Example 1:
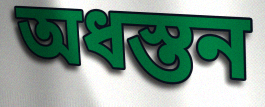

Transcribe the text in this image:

অধস্তন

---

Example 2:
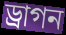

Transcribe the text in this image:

ড্রাগন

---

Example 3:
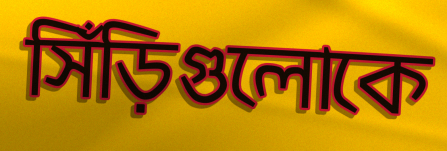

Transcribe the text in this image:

সিঁড়িগুলোকে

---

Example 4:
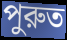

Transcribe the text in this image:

পুরুত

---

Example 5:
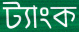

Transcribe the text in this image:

ট্যাংক